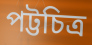
পট্টচিত্র